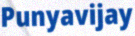
Punyavijay